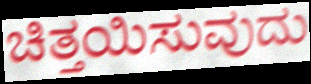
ಚಿತ್ತಯಿಸುವುದು